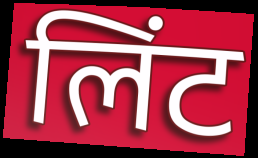
लिंट